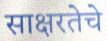
साक्षरतेचे